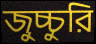
জুচ্চুরি